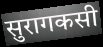
सुरागकसी